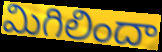
మిగిలిందా